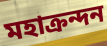
মহাক্রন্দন